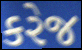
કરેજ